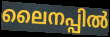
ലൈനപ്പിൽ